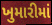
ખુમારીમાં